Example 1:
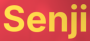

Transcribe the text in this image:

Senji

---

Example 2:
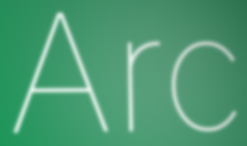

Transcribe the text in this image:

Arc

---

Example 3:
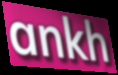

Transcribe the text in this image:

ankh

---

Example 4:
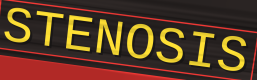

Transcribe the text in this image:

STENOSIS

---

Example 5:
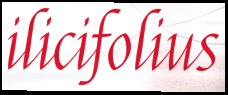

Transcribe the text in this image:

ilicifolius